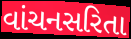
વાંચનસરિતા